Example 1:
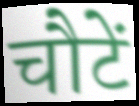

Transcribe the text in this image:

चौटें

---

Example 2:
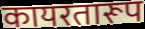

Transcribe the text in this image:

कायरतारूप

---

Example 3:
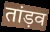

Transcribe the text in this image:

तांड़व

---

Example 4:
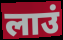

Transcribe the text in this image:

लाउं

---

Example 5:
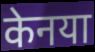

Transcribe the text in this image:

केनया